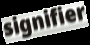
signifier